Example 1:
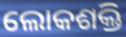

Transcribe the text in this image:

ଲୋକଶକ୍ତି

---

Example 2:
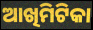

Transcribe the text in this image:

ଆଖିମିଟିକା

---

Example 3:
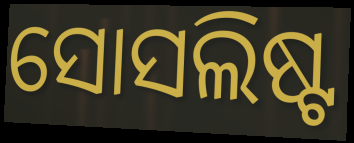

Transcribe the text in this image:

ସୋସଲିଷ୍ଟ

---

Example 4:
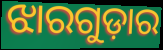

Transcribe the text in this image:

ଝାରଗୁଡ଼ାର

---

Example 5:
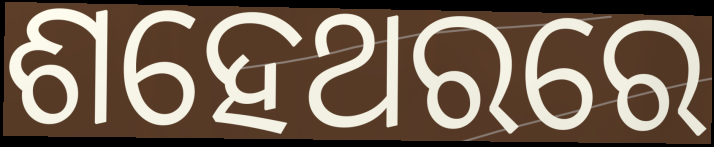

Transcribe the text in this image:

ଶହେଥରରେ